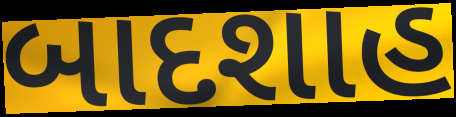
બાદશાહ